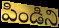
పిండిని